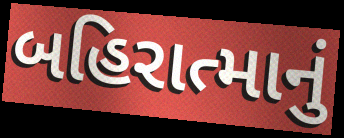
બહિરાત્માનું